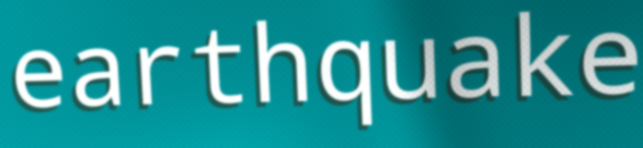
earthquake